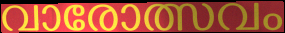
വാരോത്സവം